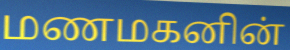
மணமகனின்